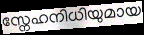
സ്നേഹനിധിയുമായ